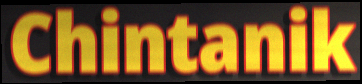
Chintanik